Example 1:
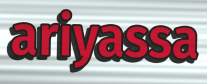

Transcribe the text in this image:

ariyassa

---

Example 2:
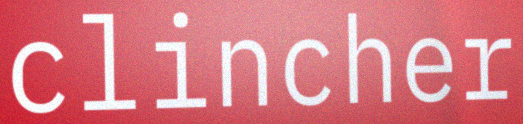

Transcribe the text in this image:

clincher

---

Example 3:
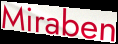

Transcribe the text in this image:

Miraben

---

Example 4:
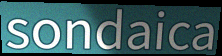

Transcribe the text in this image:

sondaica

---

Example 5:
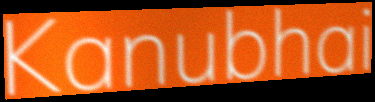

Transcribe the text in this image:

Kanubhai